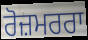
ਰੋਜ਼ਮਰਰਾ